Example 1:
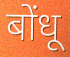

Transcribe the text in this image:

बोंधू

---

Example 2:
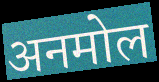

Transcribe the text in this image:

अनमोल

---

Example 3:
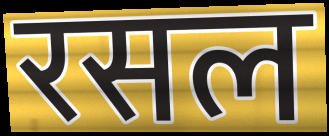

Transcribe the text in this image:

रसल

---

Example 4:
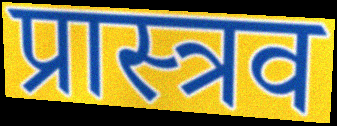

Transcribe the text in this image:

प्रास्त्रव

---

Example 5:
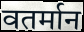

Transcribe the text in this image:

वतर्मान